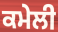
ਕਮੇਲੀ